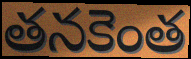
తనకెంత